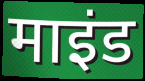
माइंड